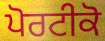
ਪੋਰਟੀਕੋ